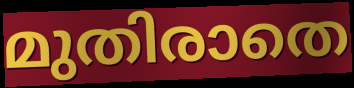
മുതിരാതെ